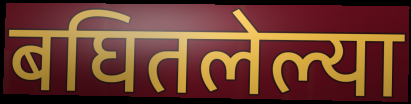
बघितलेल्या